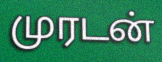
முரடன்